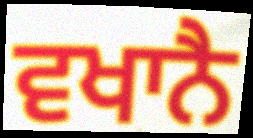
ਵਖਾਨੈ